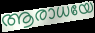
ആരാധയേ